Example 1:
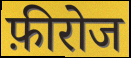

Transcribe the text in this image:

फ़ीरोज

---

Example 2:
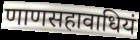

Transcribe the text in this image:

णाणसहावाधियं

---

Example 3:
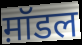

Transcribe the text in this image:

म़ॉडल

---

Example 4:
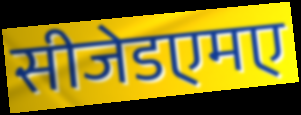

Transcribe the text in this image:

सीजेडएमए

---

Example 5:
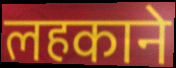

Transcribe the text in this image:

लहकाने